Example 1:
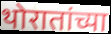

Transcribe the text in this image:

थोरातांच्या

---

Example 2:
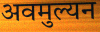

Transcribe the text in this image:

अवमुल्यन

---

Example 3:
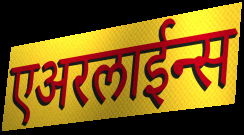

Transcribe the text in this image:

एअरलाईन्स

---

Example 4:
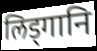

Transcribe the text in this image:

लिड्गानि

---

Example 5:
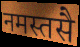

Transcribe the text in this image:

नमस्तसै